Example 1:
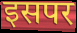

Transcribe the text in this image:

इसपर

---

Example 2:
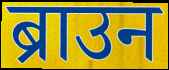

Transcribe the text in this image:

ब्राउन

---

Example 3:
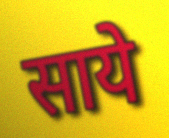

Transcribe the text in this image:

साये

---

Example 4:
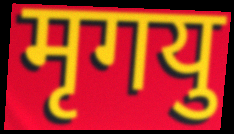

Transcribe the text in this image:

मृगयु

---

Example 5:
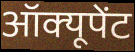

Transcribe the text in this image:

ऑक्यूपेंट